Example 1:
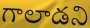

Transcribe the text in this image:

గాలాడని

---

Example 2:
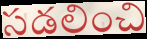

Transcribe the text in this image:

సడలించి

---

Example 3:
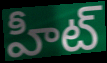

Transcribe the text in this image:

హీట్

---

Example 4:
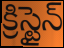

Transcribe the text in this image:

క్రిస్టైన్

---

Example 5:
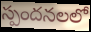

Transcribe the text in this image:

స్పందనలలో